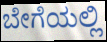
ಬೇಗೆಯಲ್ಲಿ